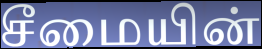
சீமையின்